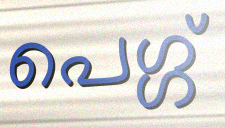
പെഗ്ഗ്